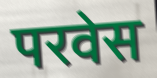
परवेस